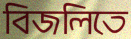
বিজলিতে